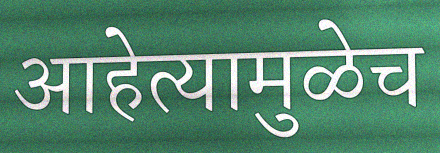
आहेत्यामुळेच